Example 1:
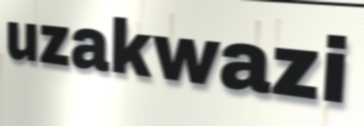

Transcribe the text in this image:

uzakwazi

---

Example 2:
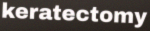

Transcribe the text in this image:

keratectomy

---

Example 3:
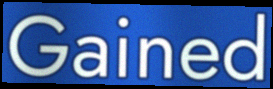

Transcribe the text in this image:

Gained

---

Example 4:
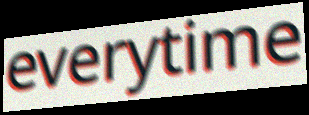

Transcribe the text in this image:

everytime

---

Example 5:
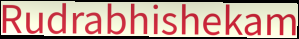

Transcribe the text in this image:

Rudrabhishekam